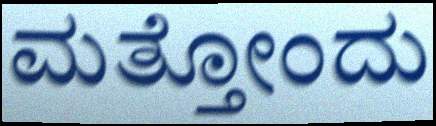
ಮತ್ತೋಂದು